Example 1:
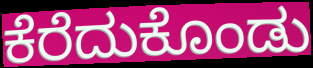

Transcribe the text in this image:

ಕೆರೆದುಕೊಂಡು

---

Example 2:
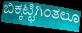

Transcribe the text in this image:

ಬಿಕ್ಕಟ್ಟಿಗಿಂತಲೂ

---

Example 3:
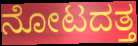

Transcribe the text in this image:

ನೋಟದತ್ತ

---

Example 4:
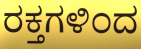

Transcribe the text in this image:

ರಕ್ತಗಳಿಂದ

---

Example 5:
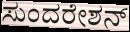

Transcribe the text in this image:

ಸುಂದರೇಶನ್